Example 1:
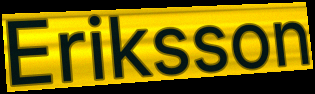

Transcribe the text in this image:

Eriksson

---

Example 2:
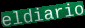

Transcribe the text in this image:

eldiario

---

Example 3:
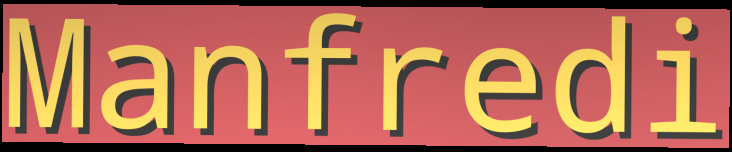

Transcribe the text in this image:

Manfredi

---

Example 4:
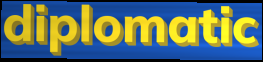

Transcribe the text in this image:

diplomatic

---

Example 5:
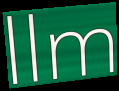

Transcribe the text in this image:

llm